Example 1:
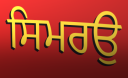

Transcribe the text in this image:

ਸਿਮਰਉ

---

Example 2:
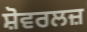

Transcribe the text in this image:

ਸ਼ੋਵਰਲਜ਼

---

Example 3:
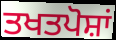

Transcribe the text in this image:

ਤਖਤਪੋਸ਼ਾਂ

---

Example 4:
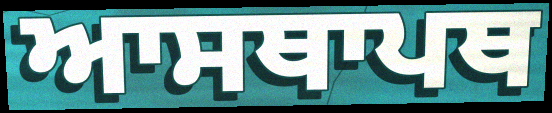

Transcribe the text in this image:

ਆਸਥਾਪਥ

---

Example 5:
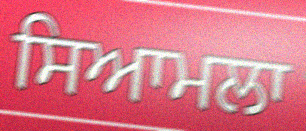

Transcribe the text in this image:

ਸਿਆਮਲਾ